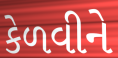
કેળવીને